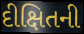
દીક્ષિતની